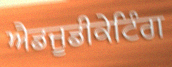
ਐਡਜੂਡੀਕੇਟਿੰਗ